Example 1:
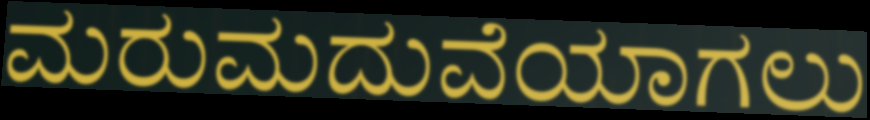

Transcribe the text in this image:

ಮರುಮದುವೆಯಾಗಲು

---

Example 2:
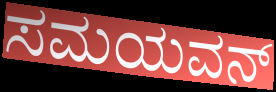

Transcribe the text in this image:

ಸಮಯವನ್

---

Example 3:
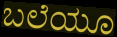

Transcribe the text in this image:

ಬಲೆಯೂ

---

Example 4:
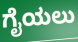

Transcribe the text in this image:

ಗೈಯಲು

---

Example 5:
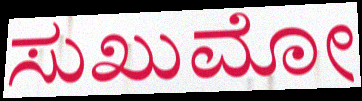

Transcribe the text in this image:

ಸುಖುಮೋ